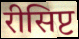
रीसिप्ट